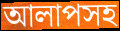
আলাপসহ